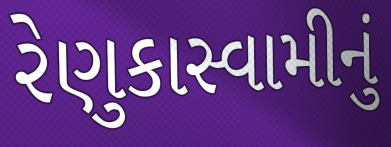
રેણુકાસ્વામીનું